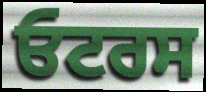
ਓਟਰਸ